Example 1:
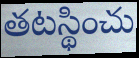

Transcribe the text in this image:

తటస్థించు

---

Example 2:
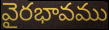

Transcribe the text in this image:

వైరభావము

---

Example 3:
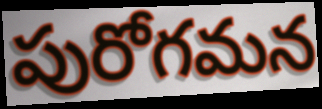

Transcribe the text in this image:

పురోగమన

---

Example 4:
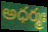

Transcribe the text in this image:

అధర్మః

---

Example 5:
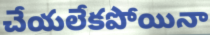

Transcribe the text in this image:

చేయలేకపోయినా